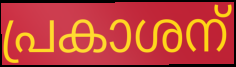
പ്രകാശന്